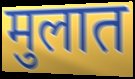
मुलात